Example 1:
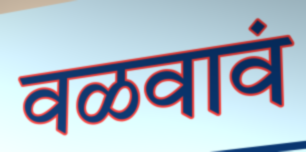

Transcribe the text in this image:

वळवावं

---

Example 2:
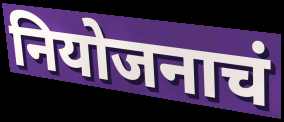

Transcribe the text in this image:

नियोजनाचं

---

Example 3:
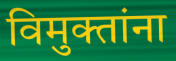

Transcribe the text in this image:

विमुक्तांना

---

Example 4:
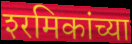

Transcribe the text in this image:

श्रमिकांच्या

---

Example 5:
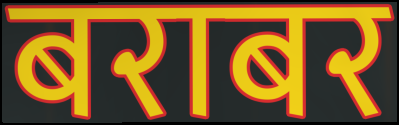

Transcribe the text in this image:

बराबर